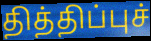
தித்திப்புச்